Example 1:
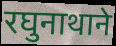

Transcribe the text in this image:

रघुनाथाने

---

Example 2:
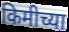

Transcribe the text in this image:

किमीच्या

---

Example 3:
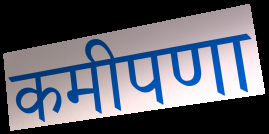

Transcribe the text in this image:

कमीपणा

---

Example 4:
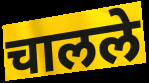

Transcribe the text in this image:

चालले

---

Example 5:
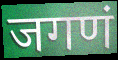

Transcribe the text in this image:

जगणं